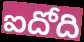
ఐదోది